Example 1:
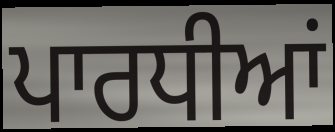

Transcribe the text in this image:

ਪਾਰਧੀਆਂ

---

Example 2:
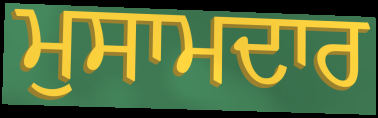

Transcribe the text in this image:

ਮੁਸਾਮਦਾਰ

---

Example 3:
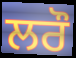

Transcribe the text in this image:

ਲਰੌ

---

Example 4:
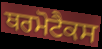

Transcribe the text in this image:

ਥਰਮੋਟੈਕਸ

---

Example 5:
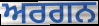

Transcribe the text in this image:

ਅਰਗਨ